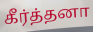
கீர்த்தனா